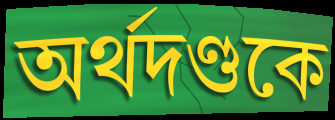
অর্থদণ্ডকে